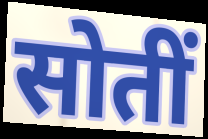
सोतीं